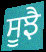
ਸੂਝੈ